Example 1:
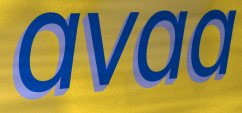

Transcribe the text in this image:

avaa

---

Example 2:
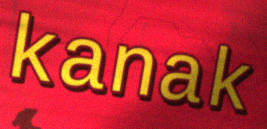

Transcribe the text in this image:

kanak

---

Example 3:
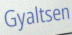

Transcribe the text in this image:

Gyaltsen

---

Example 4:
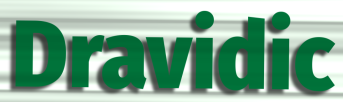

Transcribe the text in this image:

Dravidic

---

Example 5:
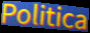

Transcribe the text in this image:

Politica